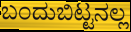
ಬಂದುಬಿಟ್ಟನಲ್ಲ